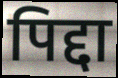
पिद्दा